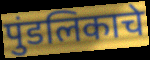
पुंडलिकाचे